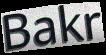
Bakr